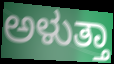
ಅಳುತ್ತಾ